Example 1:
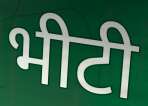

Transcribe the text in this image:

भीटी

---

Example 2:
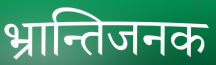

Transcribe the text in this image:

भ्रान्तिजनक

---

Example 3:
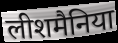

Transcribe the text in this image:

लीशमैनिया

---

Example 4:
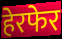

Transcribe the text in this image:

हेरफेर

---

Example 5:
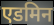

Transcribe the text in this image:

एडमिन